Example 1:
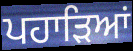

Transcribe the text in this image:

ਪਹਾੜਿਆਂ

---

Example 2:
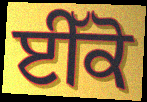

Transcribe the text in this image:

ਈੱਕੋ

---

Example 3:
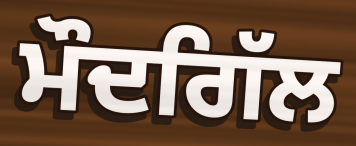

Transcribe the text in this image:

ਮੌਦਗਿੱਲ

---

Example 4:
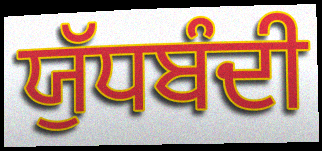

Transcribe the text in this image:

ਯੁੱਧਬੰਦੀ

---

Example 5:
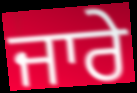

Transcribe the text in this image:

ਜਾਰੇ